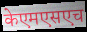
केएमएसएच